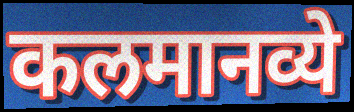
कलमानव्ये